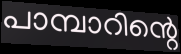
പാമ്പാറിന്റെ